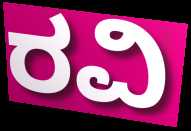
ರವಿ